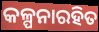
କଳ୍ପନାରହିତ